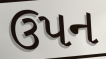
ઉપન